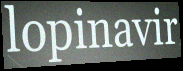
lopinavir